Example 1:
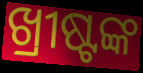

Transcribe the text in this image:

ଖ୍ରୀଷ୍ଟଙ୍କ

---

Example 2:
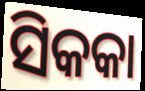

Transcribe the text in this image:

ସିକକା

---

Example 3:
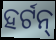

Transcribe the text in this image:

ହର୍ଟନ୍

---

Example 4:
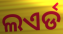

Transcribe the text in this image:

ଲଏର୍ଡ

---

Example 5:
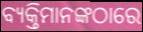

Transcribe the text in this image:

ବ୍ୟକ୍ତିମାନଙ୍କଠାରେ